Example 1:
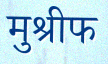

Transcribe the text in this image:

मुश्रीफ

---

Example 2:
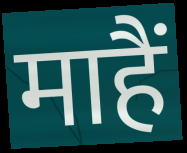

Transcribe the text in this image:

माहैं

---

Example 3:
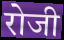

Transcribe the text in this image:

रोजी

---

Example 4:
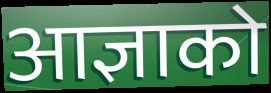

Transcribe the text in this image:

आज्ञाको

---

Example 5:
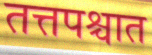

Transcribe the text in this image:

तत्तपश्चात